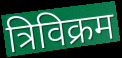
त्रिविक्रम